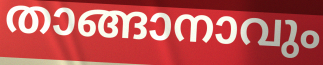
താങ്ങാനാവും